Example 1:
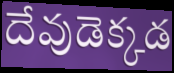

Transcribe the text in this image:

దేవుడెక్కడ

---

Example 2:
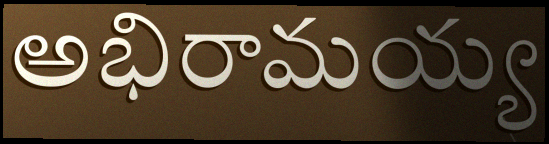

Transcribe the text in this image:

అభిరామయ్య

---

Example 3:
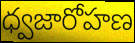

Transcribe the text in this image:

ధ్వజారోహణ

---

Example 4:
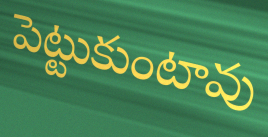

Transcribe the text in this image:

పెట్టుకుంటావు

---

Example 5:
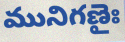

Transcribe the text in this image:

మునిగణైః